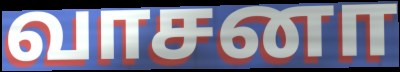
வாசனா